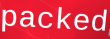
packed